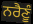
ਨਰੈਣੂੰ